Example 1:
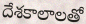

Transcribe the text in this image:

దేశకాలాలతో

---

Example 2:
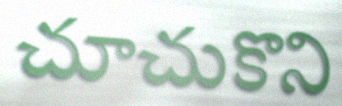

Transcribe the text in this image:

చూచుకొని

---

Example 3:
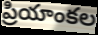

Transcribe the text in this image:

ప్రియాంకల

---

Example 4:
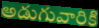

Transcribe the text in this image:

అడుగువారికి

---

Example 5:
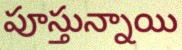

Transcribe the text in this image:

పూస్తున్నాయి